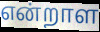
என்றாள